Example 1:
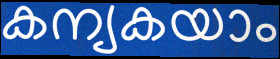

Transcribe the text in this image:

കന്യകയാം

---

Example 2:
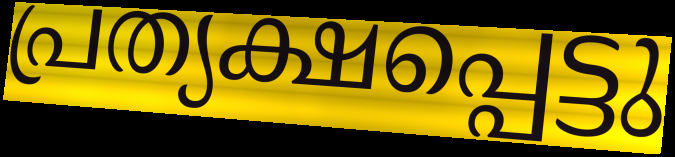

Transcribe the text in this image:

പ്രത്യക്ഷപ്പെട്ടു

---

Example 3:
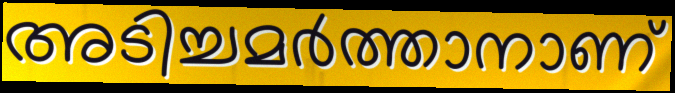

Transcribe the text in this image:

അടിച്ചമർത്താനാണ്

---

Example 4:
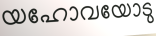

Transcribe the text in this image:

യഹോവയോടു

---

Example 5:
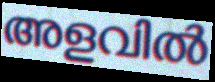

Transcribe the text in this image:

അളവിൽ